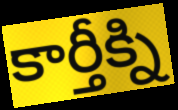
కార్తీక్ని